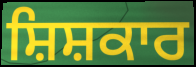
ਸ਼ਿਸ਼ਕਾਰ